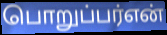
பொறுப்பர்என்